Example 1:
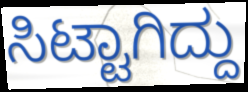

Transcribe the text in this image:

ಸಿಟ್ಟಾಗಿದ್ದು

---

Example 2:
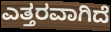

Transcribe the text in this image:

ಎತ್ತರವಾಗಿದೆ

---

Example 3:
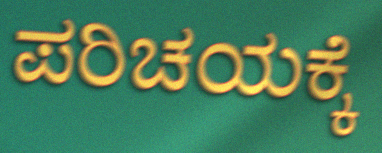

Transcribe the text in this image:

ಪರಿಚಯಕ್ಕೆ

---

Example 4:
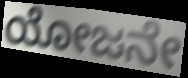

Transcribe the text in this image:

ಯೋಜನೇ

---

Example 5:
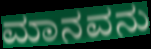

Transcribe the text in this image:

ಮಾನವನು